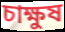
চাক্ষুষ